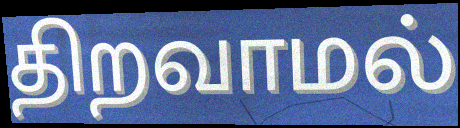
திறவாமல்